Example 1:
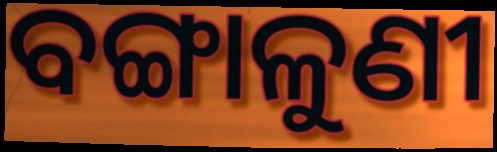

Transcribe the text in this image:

ବଙ୍ଗାଳୁଣୀ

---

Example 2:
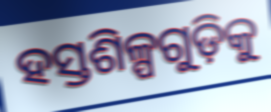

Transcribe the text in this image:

ହସ୍ତଶିଳ୍ପଗୁଡ଼ିକୁ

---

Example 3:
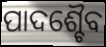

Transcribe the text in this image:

ପାଦଶ୍ଚୈବ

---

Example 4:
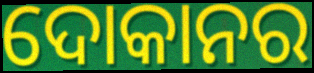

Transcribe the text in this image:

ଦୋକାନର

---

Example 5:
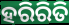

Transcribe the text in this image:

ହରିରିତି